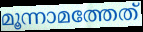
മൂന്നാമത്തേത്